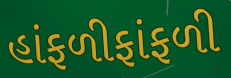
હાંફળીફાંફળી